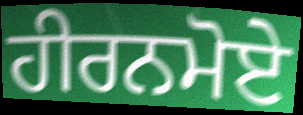
ਹੀਰਨਮੋਏ